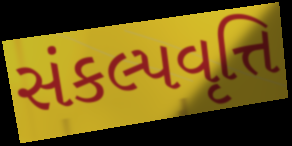
સંકલ્પવૃત્તિ